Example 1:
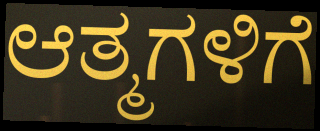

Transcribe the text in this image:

ಆತ್ಮಗಳಿಗೆ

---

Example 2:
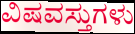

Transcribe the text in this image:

ವಿಷವಸ್ತುಗಳು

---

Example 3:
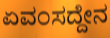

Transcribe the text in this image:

ಏವಂಸದ್ದೇನ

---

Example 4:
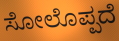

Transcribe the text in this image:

ಸೋಲೊಪ್ಪದೆ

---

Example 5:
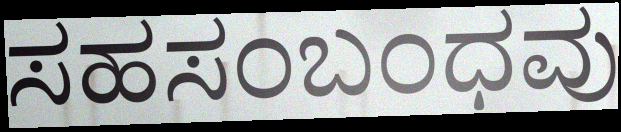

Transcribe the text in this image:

ಸಹಸಂಬಂಧವು